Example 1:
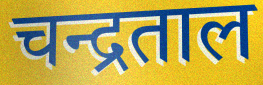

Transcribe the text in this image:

चन्द्रताल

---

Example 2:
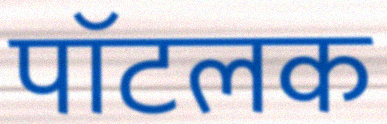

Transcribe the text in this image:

पॉटलक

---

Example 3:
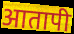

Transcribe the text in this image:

आतापी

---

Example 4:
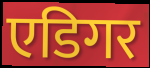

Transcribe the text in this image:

एडिगर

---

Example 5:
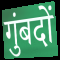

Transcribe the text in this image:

गुंबदों